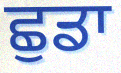
ਛੁਡਾ